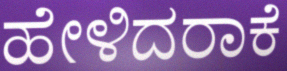
ಹೇಳಿದರಾಕೆ